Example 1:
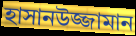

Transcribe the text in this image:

হাসানউজ্জামান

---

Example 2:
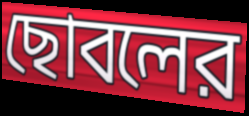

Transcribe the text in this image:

ছোবলের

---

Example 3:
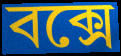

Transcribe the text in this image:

বক্সে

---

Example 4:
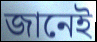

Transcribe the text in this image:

জানেই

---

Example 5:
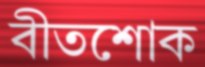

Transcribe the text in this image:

বীতশোক